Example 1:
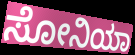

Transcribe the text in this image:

ಸೋನಿಯಾ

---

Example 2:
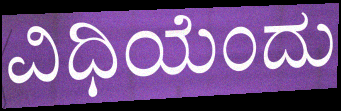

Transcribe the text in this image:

ವಿಧಿಯೆಂದು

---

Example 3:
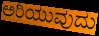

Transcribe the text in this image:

ಅರಿಯುವುದು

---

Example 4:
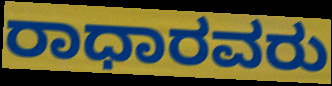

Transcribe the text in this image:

ರಾಧಾರವರು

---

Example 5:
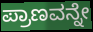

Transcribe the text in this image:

ಪ್ರಾಣವನ್ನೇ